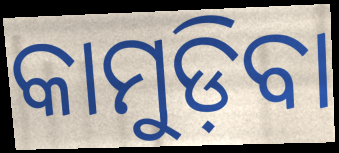
କାମୁଡ଼ିବା